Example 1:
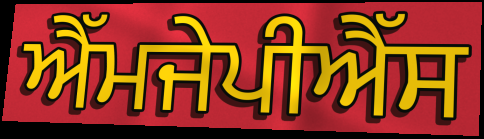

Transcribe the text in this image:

ਐੱਮਜੇਪੀਐੱਸ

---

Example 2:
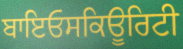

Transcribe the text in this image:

ਬਾਇਓਸਕਿਊਰਿਟੀ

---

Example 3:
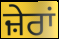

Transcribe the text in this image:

ਜ਼ੇਰਾਂ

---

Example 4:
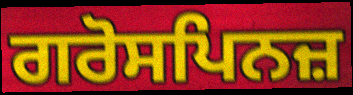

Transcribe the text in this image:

ਗਰੋਸਪਿਨਜ਼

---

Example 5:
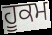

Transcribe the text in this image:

ਹੂਕਮ